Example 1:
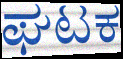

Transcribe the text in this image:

ಘಟಕ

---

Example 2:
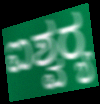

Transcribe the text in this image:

ಐಶ್ವರ‍್ಯ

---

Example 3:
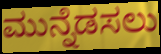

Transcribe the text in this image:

ಮುನ್ನೆಡಸಲು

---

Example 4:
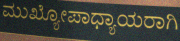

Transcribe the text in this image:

ಮುಖ್ಯೋಪಾಧ್ಯಾಯರಾಗಿ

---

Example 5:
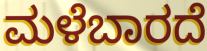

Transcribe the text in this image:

ಮಳೆಬಾರದೆ